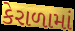
કેરાળામાં